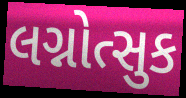
લગ્નોત્સુક